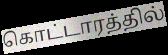
கொட்டாரத்தில்